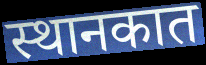
स्थानकात